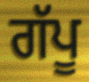
ਗੱਪੂ